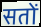
सतों